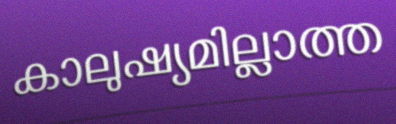
കാലുഷ്യമില്ലാത്ത